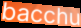
bacchu